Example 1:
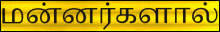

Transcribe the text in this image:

மன்னர்களால்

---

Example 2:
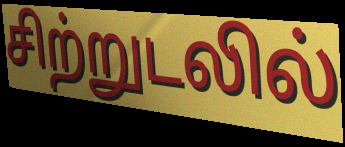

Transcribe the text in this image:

சிற்றுடலில்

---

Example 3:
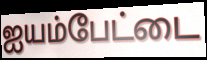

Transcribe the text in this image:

ஐயம்பேட்டை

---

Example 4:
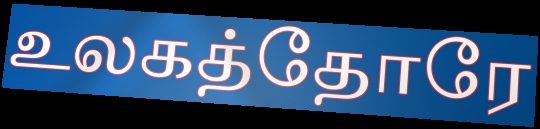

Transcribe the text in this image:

உலகத்தோரே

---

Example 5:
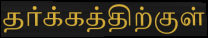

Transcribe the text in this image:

தர்க்கத்திற்குள்